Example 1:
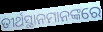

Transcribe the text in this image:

ତୀର୍ଥସ୍ଥାନମାନଙ୍କରେ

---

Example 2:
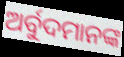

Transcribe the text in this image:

ଅର୍ବୁଦମାନଙ୍କ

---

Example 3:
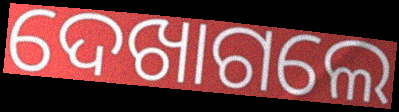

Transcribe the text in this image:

ଦେଖାଗଲେ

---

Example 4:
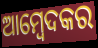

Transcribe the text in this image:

ଆମ୍ବେଦକର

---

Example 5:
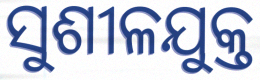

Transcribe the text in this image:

ସୁଶୀଳଯୁକ୍ତ